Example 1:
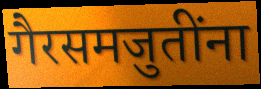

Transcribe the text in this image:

गैरसमजुतींना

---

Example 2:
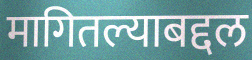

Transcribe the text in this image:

मागितल्याबद्दल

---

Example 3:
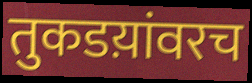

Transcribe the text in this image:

तुकडय़ांवरच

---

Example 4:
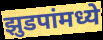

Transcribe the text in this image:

झुडपांमध्ये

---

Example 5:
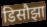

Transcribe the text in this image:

डिसौझा